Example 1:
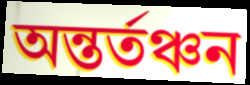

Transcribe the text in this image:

অন্তর্তঞ্চন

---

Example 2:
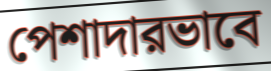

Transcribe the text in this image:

পেশাদারভাবে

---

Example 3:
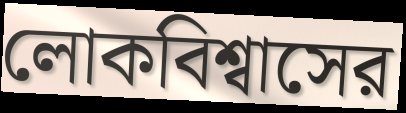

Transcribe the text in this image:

লোকবিশ্বাসের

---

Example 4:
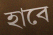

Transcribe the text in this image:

হাবে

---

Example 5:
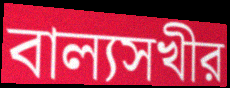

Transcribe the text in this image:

বাল্যসখীর